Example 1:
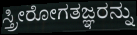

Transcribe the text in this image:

ಸ್ತ್ರೀರೋಗತಜ್ಞರನ್ನು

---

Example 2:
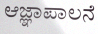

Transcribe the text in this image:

ಆಜ್ಞಾಪಾಲನೆ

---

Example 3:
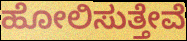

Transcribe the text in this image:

ಹೋಲಿಸುತ್ತೇವೆ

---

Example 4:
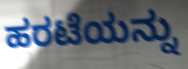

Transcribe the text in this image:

ಹರಟೆಯನ್ನು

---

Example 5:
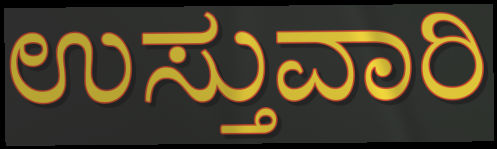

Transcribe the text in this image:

ಉಸ್ತುವಾರಿ